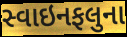
સ્વાઇનફલુના